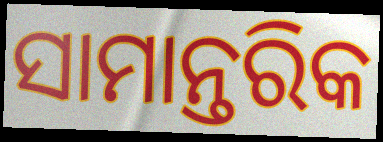
ସାମାନ୍ତରିକ